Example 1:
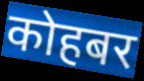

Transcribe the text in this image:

कोहबर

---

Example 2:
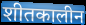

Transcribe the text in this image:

शीतकालीन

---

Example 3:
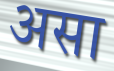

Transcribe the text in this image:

असा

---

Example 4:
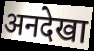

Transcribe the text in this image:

अनदेखा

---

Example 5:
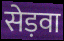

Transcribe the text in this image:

सेड़वा